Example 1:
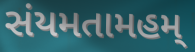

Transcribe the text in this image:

સંયમતામહમ્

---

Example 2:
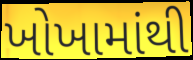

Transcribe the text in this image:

ખોખામાંથી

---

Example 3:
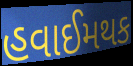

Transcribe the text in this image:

હવાઈમથક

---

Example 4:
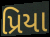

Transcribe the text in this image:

પ્રિયા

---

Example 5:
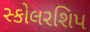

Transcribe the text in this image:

સ્કોલરશિપ